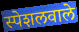
स्पेशलवाले